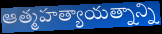
ఆత్మహత్యాయత్నాన్ని